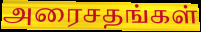
அரைசதங்கள்